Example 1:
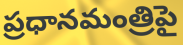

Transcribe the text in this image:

ప్రధానమంత్రిపై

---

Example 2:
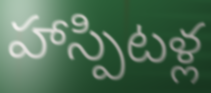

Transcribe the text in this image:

హాస్పిటళ్ల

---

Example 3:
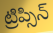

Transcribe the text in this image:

ట్రిప్సిన్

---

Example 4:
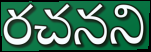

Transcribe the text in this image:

రచనని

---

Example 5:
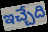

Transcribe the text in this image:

ఇచ్చేది